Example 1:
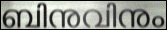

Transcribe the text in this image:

ബിനുവിനും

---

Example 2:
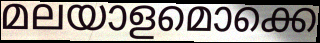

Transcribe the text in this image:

മലയാളമൊക്കെ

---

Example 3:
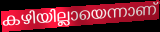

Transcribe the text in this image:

കഴിയില്ലായെന്നാണ്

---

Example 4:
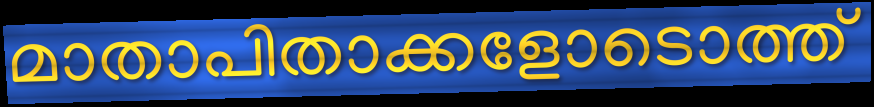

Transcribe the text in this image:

മാതാപിതാക്കളോടൊത്ത്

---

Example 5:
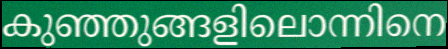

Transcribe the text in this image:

കുഞ്ഞുങ്ങളിലൊന്നിനെ